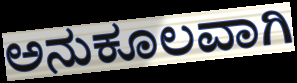
ಅನುಕೂಲವಾಗಿ